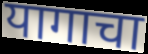
यागाचा